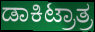
ಡಾಕಿಟ್ರಾತ್ರ